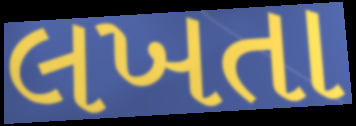
લખતા